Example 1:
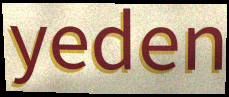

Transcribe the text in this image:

yeden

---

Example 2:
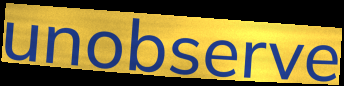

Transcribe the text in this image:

unobserve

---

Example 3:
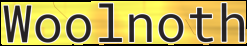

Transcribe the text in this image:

Woolnoth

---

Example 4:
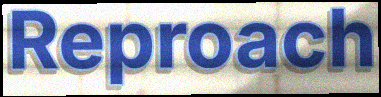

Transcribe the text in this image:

Reproach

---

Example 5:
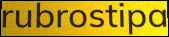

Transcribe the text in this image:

rubrostipa